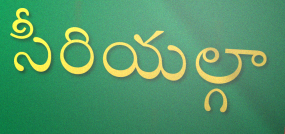
సీరియల్గా